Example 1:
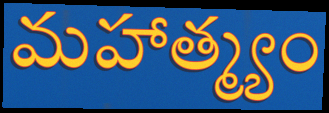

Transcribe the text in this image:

మహాత్మ్యం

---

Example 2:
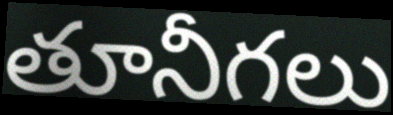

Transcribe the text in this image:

తూనీగలు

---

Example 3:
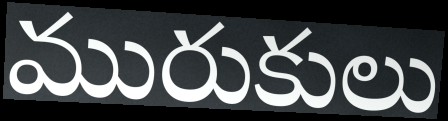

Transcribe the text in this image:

మురుకులు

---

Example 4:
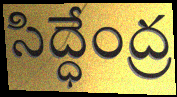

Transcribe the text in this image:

సిద్ధేంద్ర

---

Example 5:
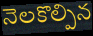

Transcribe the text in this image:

నెలకొల్పిన